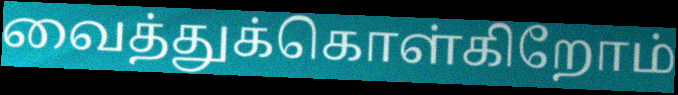
வைத்துக்கொள்கிறோம்